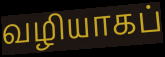
வழியாகப்